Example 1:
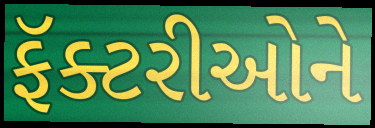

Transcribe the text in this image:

ફૅક્ટરીઓને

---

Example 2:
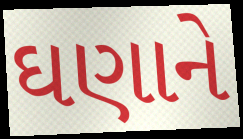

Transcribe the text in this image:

ઘણાને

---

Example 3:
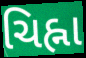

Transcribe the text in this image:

ચિહ્ના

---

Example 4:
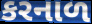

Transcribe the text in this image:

કરનાળ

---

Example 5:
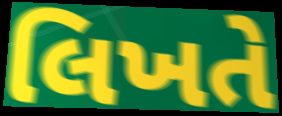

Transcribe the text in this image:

લિખતે